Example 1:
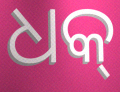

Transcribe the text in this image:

ଧକ୍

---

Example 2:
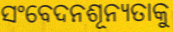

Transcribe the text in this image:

ସଂବେଦନଶୂନ୍ୟତାକୁ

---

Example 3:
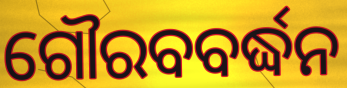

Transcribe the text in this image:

ଗୌରବବର୍ଦ୍ଧନ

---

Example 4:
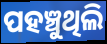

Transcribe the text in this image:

ପହଞ୍ଚୁଥିଲି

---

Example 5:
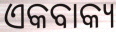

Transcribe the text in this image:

ଏକବାକ୍ୟ